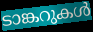
ടാങ്കറുകൾ